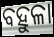
ବହୁଳା